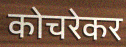
कोचरेकर